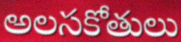
అలసకోతులు